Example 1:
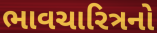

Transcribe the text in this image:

ભાવચારિત્રનો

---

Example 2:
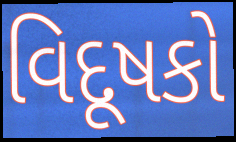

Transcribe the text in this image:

વિદૂષકો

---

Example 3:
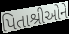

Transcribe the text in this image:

પિતાશ્રીઓને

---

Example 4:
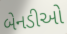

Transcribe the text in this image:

બેનડીઓ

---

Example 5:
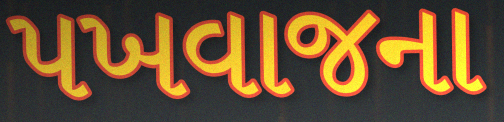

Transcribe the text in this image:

પખવાજના